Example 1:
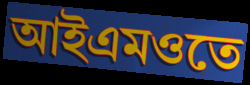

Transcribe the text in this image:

আইএমওতে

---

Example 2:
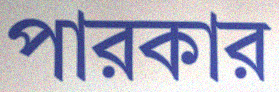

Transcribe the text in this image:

পারকার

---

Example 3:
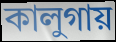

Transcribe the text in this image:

কালুগায়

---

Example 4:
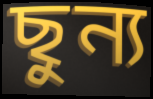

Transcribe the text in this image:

ছুন্য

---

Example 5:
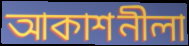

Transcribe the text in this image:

আকাশনীলা